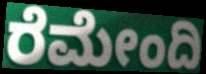
ರೆಮೇಂದಿ